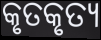
କୃତକୃତ୍ୟ